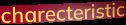
charecteristic